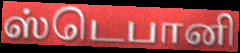
ஸ்டெபானி